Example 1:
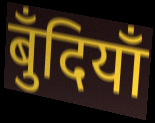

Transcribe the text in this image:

बुँदियाँ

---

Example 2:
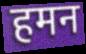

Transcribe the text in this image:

हमन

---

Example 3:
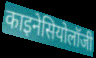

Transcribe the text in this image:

काइनेसियोलॉजी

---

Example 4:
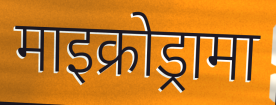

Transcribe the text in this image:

माइक्रोड्रामा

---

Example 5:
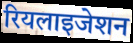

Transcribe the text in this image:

रियलाइजेशन